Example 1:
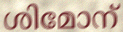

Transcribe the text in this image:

ശിമോന്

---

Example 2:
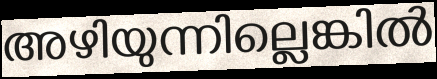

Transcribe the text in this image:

അഴിയുന്നില്ലെങ്കിൽ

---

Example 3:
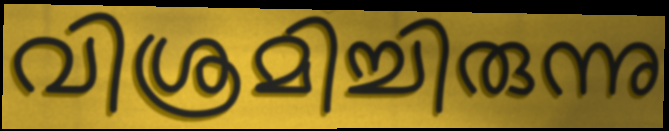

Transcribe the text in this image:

വിശ്രമിച്ചിരുന്നു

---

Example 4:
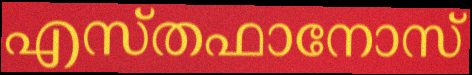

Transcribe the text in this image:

എസ്തഫാനോസ്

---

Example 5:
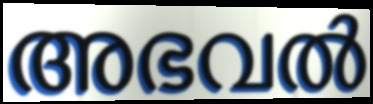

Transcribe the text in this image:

അഭവൽ